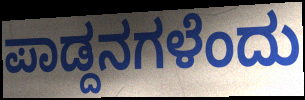
ಪಾಡ್ದನಗಳೆಂದು